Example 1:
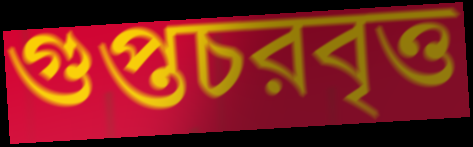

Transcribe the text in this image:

গুপ্তচরবৃত্ত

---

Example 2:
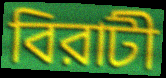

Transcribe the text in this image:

বিরাটী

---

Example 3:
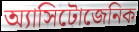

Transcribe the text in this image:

অ্যাসিটোজেনিক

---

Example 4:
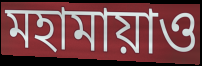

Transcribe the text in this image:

মহামায়াও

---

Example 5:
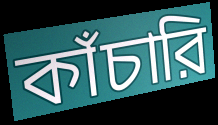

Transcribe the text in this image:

কাঁচারি